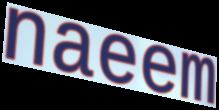
naeem